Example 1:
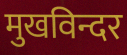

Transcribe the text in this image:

मुखविन्दर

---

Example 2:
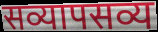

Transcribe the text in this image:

सव्यापसव्य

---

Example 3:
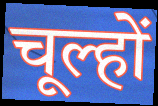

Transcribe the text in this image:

चूल्हों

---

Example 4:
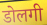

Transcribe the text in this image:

डोलगी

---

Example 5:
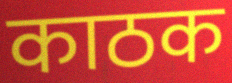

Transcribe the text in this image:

काठक